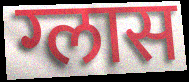
ग्लास